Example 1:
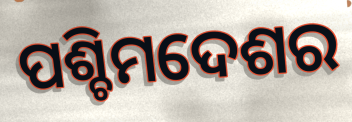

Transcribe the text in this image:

ପଶ୍ଚିମଦେଶର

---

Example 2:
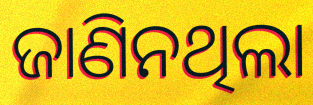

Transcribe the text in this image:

ଜାଣିନଥିଲା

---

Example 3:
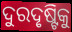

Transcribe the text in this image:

ଦୁରଦୃଷ୍ଟିକୁ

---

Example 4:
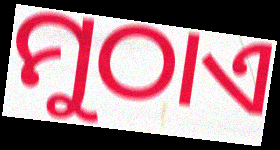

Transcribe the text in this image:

ମୁଠାଏ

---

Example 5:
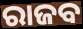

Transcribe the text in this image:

ରାଜବ